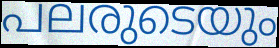
പലരുടെയും